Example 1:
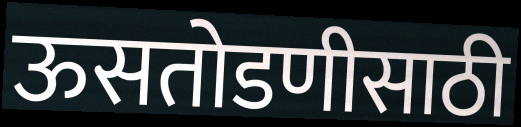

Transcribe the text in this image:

ऊसतोडणीसाठी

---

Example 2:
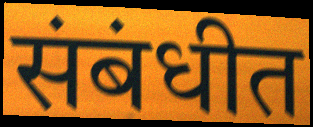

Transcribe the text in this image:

संबंधीत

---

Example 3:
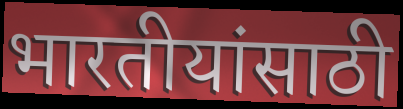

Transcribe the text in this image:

भारतीयांसाठी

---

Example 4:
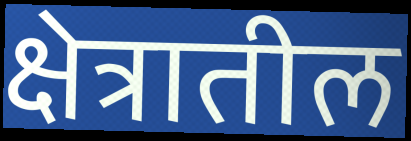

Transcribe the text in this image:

क्षेत्रातील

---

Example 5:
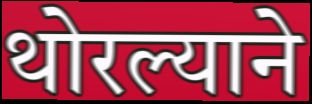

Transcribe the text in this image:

थोरल्याने